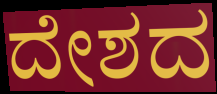
ದೇಶದ